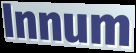
Innum